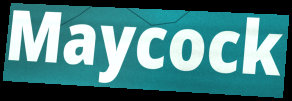
Maycock